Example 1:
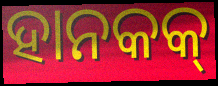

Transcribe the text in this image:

ହାନକକ୍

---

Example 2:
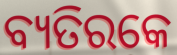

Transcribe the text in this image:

ବ୍ୟତିରକେ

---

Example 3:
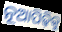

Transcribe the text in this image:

ନୂଆପିଢ଼ିକୁ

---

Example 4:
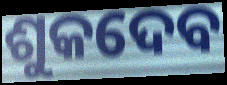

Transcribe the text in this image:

ଶୁକଦେବ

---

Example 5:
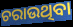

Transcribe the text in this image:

ଚରାଉଥିବା